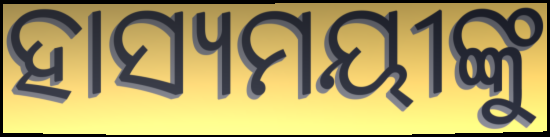
ହାସ୍ୟମୟୀଙ୍କୁ